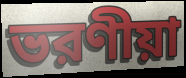
ভরণীয়া